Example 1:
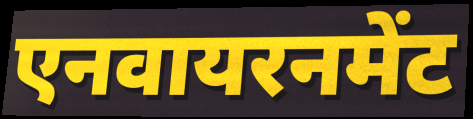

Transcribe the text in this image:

एनवायरनमेंट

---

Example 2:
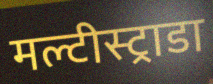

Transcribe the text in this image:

मल्टीस्ट्राडा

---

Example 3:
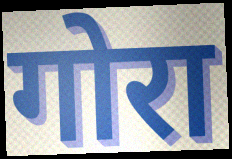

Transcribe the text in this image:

गोरा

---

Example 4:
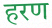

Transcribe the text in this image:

हरण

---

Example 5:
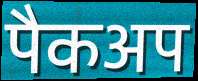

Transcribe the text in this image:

पैकअप